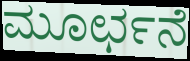
ಮೂರ್ಛನೆ